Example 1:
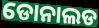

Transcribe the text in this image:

ଡୋନାଲଡ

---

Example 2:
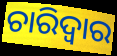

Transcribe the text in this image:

ଚାରିଦ୍ୱାର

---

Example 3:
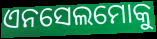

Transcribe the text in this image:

ଏନସେଲମୋକୁ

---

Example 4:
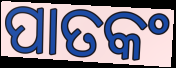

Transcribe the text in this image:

ପାତକଂ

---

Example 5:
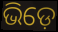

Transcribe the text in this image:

ଭିଡ଼େ